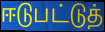
ஈடுபட்டுத்